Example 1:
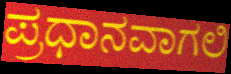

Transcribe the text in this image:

ಪ್ರಧಾನವಾಗಲಿ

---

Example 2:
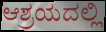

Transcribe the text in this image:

ಆಶ್ರಯದಲ್ಲಿ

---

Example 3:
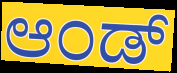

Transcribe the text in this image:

ಆಂಡ್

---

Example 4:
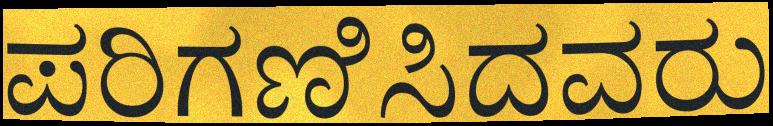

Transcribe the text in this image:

ಪರಿಗಣಿಸಿದವರು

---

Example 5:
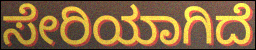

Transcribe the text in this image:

ಸೇರಿಯಾಗಿದೆ